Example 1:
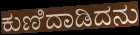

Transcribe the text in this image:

ಕುಣಿದಾಡಿದನು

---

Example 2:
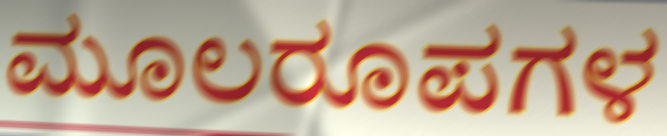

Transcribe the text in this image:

ಮೂಲರೂಪಗಳ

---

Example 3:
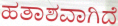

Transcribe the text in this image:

ಹತಾಶವಾಗಿದೆ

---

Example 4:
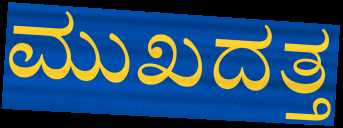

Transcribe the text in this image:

ಮುಖದತ್ತ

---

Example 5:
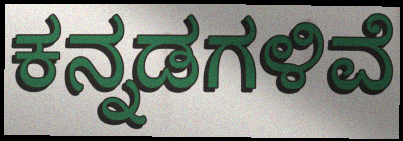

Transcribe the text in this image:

ಕನ್ನಡಗಳಿವೆ